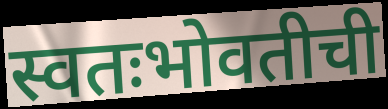
स्वतःभोवतीची